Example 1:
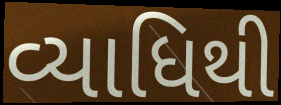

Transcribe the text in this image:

વ્યાધિથી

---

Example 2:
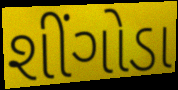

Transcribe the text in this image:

શીંગોડા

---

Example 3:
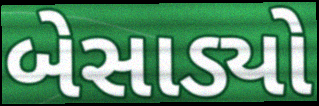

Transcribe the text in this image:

બેસાડ્યો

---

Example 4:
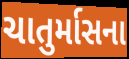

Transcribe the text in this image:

ચાતુર્માસના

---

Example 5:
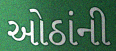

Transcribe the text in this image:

ઓઠાંની